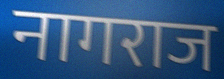
नागराज